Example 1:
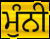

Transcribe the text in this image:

ਮੁੰਨੀ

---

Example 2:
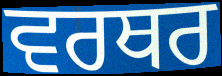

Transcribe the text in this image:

ਵਰਥਰ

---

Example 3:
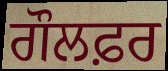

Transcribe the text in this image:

ਗੌਲਫ਼ਰ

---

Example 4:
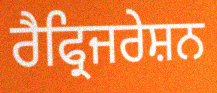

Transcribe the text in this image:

ਰੈਫ੍ਰਿਜਰੇਸ਼ਨ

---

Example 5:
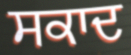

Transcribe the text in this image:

ਸਕਾਦ